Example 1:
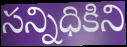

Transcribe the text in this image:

సన్నిధికిని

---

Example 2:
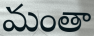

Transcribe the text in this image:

మంతా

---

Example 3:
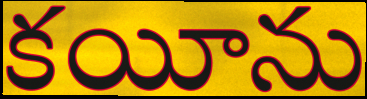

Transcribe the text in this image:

కయీను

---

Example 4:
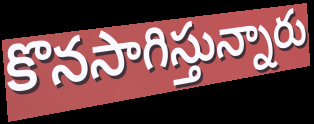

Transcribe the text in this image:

కొనసాగిస్తున్నారు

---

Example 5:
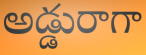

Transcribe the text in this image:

అడ్డురాగా